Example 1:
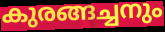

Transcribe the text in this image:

കുരങ്ങച്ചനും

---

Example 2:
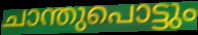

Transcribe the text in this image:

ചാന്തുപൊട്ടും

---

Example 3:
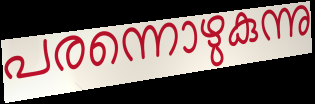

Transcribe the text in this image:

പരന്നൊഴുകുന്നു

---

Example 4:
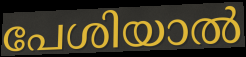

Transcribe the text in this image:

പേശിയാൽ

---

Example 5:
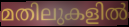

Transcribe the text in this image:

മതിലുകളിൽ